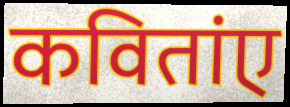
कवितांए